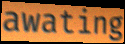
awating